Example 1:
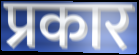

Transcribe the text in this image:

प्रकार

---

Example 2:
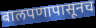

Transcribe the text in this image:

बालपणापासूनच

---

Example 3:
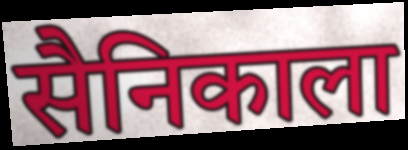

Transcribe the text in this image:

सैनिकाला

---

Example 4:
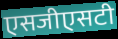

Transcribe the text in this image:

एसजीएसटी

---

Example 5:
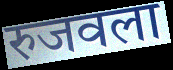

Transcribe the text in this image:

रुजवला